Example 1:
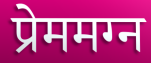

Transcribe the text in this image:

प्रेममग्न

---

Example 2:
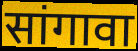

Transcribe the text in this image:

सांगावा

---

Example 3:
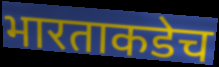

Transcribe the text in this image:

भारताकडेच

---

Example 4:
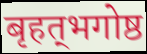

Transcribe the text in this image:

बृहत्‌भगोष्ठ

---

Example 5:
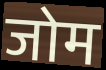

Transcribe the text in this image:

जोम